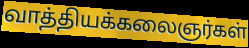
வாத்தியக்கலைஞர்கள்